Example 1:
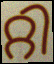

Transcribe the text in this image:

റ്റി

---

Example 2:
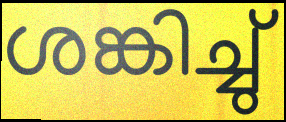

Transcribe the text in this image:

ശങ്കിച്ചു്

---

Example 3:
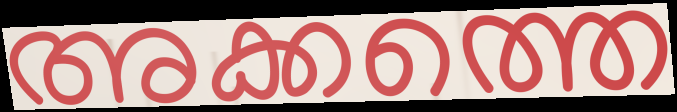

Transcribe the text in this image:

അക്കത്തെ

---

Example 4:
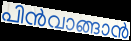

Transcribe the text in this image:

പിൻവാങ്ങാൻ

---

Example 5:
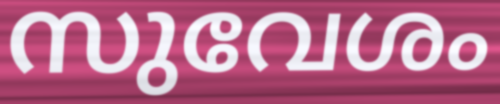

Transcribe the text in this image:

സുവേശം